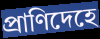
প্রাণিদেহে